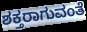
ಶಕ್ತರಾಗುವಂತೆ